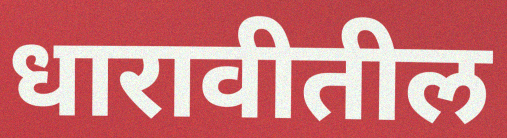
धारावीतील